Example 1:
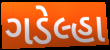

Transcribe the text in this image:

ગડેલ્હા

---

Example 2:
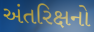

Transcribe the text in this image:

અંતરિક્ષનો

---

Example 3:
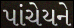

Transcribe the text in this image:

પાંચેયને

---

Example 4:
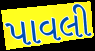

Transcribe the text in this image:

પાવલી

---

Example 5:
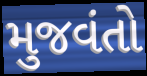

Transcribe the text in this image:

મુજવંતો